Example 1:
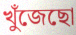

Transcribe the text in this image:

খুঁজেছো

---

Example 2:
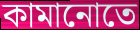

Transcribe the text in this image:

কামানোতে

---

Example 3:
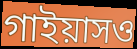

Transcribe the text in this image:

গাইয়াসও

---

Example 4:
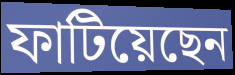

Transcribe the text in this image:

ফাটিয়েছেন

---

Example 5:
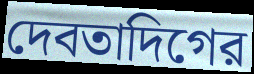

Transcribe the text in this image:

দেবতাদিগের